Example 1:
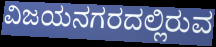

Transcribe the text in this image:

ವಿಜಯನಗರದಲ್ಲಿರುವ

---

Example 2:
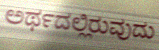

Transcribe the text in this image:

ಅರ್ಥದಲ್ಲಿರುವುದು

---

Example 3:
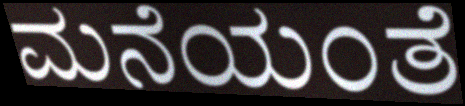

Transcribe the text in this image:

ಮನೆಯಂತೆ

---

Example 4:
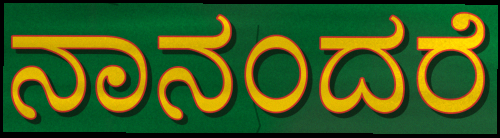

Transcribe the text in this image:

ನಾನಂದರೆ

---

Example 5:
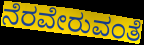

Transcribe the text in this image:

ನೆರವೇರುವಂತೆ